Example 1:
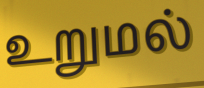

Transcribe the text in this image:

உறுமல்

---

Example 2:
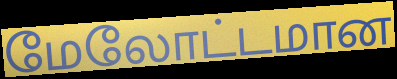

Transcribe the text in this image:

மேலோட்டமான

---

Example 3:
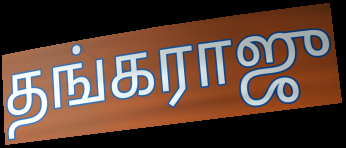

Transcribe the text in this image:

தங்கராஜு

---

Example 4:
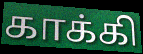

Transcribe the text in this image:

காக்கி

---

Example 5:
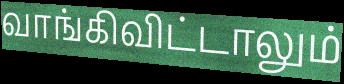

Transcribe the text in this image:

வாங்கிவிட்டாலும்